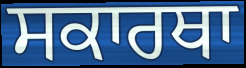
ਸਕਾਰਥਾ